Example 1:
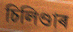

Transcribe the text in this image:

চিলিণ্ডাৰ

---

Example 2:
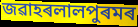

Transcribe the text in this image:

জৱাহৰলালপুৰমৰ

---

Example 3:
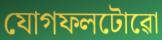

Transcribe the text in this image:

যোগফলটোৱো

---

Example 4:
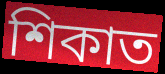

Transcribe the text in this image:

শিকাত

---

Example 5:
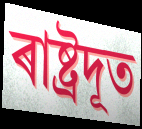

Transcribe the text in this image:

ৰাষ্ট্ৰদূত